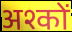
अश्कों